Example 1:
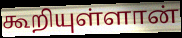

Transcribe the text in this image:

கூறியுள்ளான்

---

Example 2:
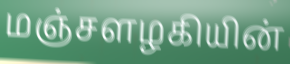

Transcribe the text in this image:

மஞ்சளழகியின்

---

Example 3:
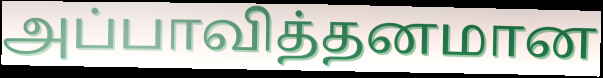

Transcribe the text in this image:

அப்பாவித்தனமான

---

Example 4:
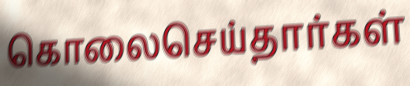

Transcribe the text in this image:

கொலைசெய்தார்கள்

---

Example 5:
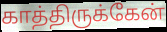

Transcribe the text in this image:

காத்திருக்கேன்